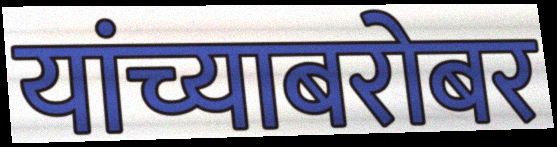
यांच्याबरोबर